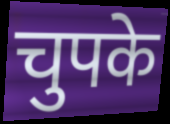
चुपके